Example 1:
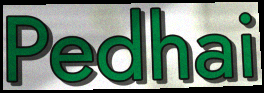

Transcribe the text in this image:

Pedhai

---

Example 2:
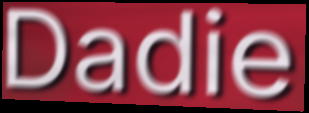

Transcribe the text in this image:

Dadie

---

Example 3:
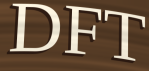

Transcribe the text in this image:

DFT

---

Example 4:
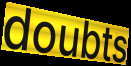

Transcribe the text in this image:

doubts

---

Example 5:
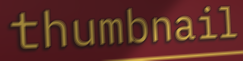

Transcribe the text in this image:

thumbnail